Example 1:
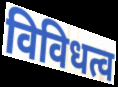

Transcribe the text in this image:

विविधत्व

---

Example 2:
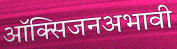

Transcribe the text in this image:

ऑक्सिजनअभावी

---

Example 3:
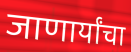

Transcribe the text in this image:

जाणार्यांचा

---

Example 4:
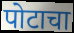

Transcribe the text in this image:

पोटाचा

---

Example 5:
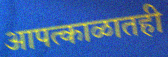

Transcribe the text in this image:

आपत्काळातही